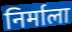
निर्माला